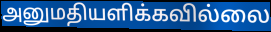
அனுமதியளிக்கவில்லை